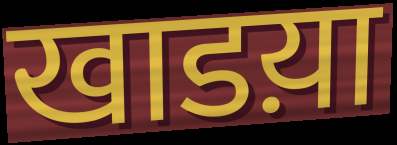
खाडय़ा